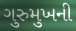
ગુરુમુખની